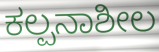
ಕಲ್ಪನಾಶೀಲ